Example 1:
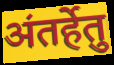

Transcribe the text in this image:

अंतर्हेतु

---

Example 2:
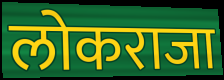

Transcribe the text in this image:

लोकराजा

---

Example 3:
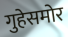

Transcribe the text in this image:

गुहेसमोर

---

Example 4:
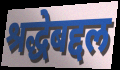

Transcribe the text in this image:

श्रद्धेबद्दल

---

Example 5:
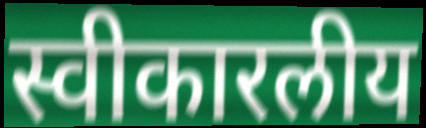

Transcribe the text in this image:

स्वीकारलीय